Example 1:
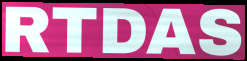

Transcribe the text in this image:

RTDAS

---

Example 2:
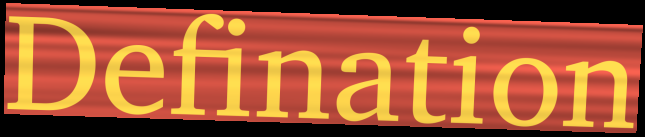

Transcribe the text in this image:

Defination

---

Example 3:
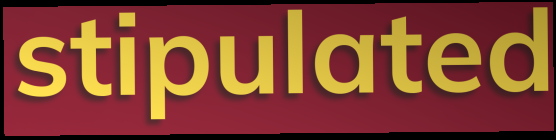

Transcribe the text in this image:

stipulated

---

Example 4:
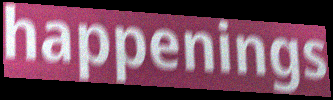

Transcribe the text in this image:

happenings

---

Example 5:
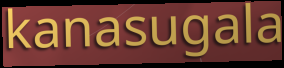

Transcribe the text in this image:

kanasugala